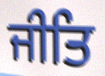
ਜੀਤਿ